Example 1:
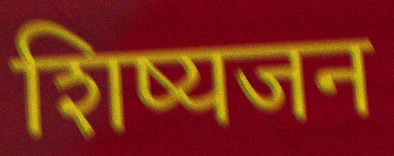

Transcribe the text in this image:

शिष्यजन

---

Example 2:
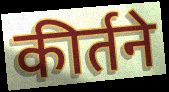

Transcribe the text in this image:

कीर्तने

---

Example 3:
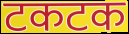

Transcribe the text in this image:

टकटक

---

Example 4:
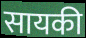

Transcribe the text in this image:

सायकी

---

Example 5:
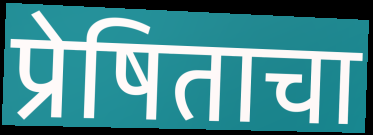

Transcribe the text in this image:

प्रेषिताचा